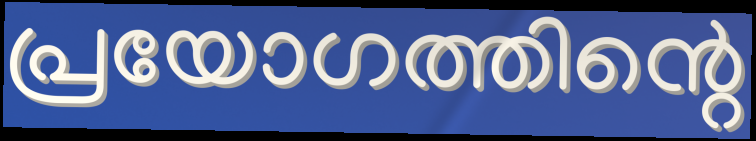
പ്രയോഗത്തിന്റെ